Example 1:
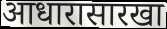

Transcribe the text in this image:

आधारासारखा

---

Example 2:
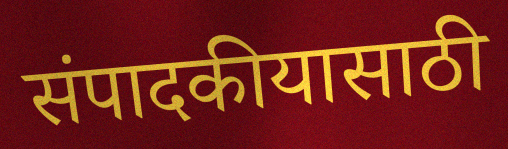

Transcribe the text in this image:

संपादकीयासाठी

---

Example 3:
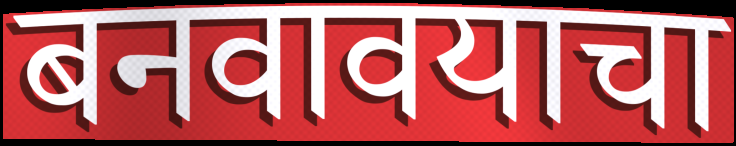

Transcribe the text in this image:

बनवावयाचा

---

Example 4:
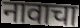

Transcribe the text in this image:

नावाचा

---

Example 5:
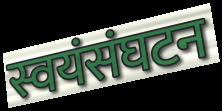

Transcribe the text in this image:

स्वयंसंघटन